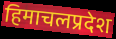
हिमाचलप्रदेश